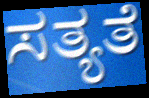
ಸತ್ಯತೆ